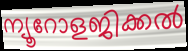
ന്യൂറോളജിക്കൽ